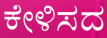
ಕೇಳಿಸದ